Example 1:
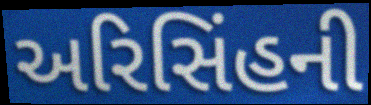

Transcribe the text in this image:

અરિસિંહની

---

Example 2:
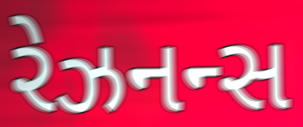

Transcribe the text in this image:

રેઝનન્સ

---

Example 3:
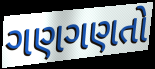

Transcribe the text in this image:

ગણગણતો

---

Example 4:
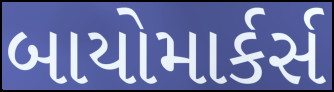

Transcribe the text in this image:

બાયોમાર્કર્સ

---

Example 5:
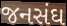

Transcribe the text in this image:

જનસંઘ